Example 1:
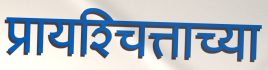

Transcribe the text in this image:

प्रायश्‍चित्ताच्या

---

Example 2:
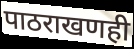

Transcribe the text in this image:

पाठराखणही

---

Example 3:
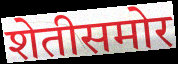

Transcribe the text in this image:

शेतीसमोर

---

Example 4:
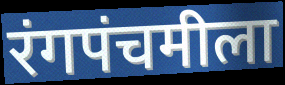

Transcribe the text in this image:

रंगपंचमीला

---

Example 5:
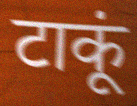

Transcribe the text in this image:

टाकूं